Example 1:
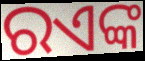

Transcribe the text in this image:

ରଏଙ୍କ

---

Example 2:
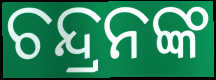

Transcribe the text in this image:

ଚନ୍ଦ୍ରନଙ୍କ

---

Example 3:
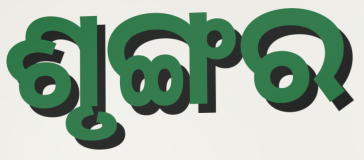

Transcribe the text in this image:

ଶୃଙ୍ଗର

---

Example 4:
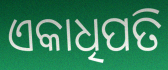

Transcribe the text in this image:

ଏକାଧିପତି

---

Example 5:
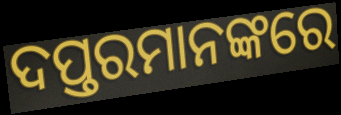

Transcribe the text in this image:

ଦପ୍ତରମାନଙ୍କରେ